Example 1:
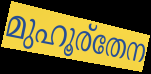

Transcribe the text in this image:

മുഹൂര്തേന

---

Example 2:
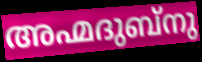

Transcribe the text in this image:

അഹ്മദുബ്നു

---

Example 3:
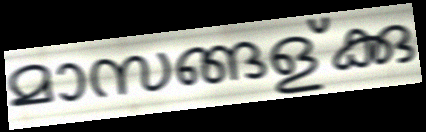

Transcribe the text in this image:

മാസങ്ങള്ക്കു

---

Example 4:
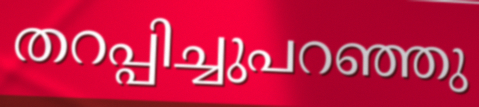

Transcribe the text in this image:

തറപ്പിച്ചുപറഞ്ഞു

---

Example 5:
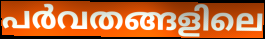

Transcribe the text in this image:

പർവതങ്ങളിലെ